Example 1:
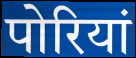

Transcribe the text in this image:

पोरियां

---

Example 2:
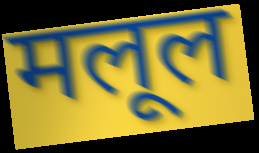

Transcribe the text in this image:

मलूल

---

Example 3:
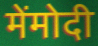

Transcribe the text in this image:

मेंमोदी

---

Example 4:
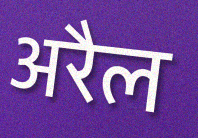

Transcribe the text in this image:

अरैल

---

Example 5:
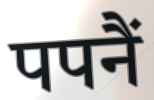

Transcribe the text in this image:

पपनैं